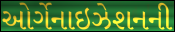
ઓર્ગેનાઇઝેશનની